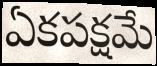
ఏకపక్షమే